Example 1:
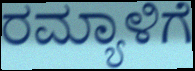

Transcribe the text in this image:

ರಮ್ಯಾಳಿಗೆ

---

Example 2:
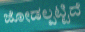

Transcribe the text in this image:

ಜೋಡಲ್ಪಟ್ಟಿದೆ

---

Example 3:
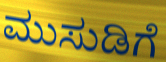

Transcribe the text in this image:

ಮುಸುಡಿಗೆ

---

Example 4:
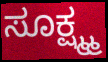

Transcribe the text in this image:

ಸೂಕ್ಷ್ಮ್ಮ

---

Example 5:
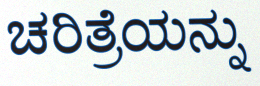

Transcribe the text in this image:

ಚರಿತ್ರೆಯನ್ನು